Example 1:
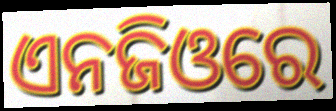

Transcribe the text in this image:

ଏନଜିଓରେ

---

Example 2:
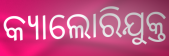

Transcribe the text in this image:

କ୍ୟାଲୋରିଯୁକ୍ତ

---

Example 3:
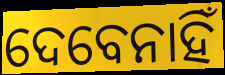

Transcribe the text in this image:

ଦେବେନାହିଁ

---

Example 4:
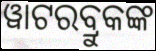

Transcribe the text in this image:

ୱାଟରବ୍ରୁକଙ୍କ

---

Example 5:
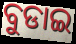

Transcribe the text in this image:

ବୁଡାଇ